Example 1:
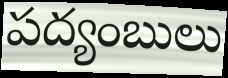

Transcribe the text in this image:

పద్యంబులు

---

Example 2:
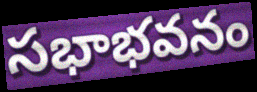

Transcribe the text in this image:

సభాభవనం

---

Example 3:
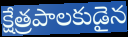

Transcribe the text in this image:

క్షేత్రపాలకుడైన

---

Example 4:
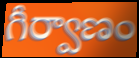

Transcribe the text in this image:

గీర్వాణం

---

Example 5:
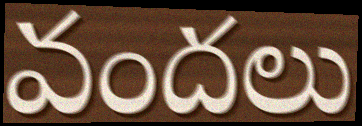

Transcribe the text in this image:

వందలు